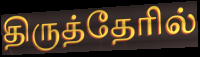
திருத்தேரில்